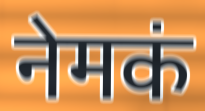
नेमकं